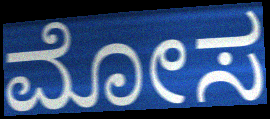
ಮೋಸ